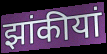
झांकीयां